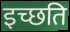
इच्छति